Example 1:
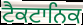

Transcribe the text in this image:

ਟੈਕਟਾਨਿਕ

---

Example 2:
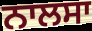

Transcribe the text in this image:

ਨਾਲਸਾ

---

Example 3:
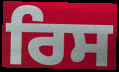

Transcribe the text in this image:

ਰਿਸ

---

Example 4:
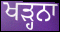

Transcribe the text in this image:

ਖੜ੍ਹਨਾ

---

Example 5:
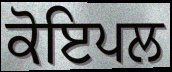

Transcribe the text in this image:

ਕੋਇਪਲ